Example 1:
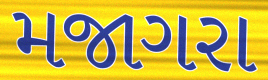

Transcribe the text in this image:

મજાગરા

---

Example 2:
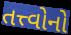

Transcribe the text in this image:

તત્ત્વોનો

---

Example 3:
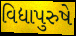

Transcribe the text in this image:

વિદ્યાપુરુષે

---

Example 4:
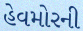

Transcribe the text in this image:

હેવમોરની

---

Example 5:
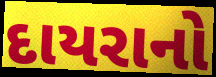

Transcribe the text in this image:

દાયરાનો